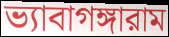
ভ্যাবাগঙ্গারাম